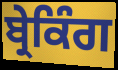
ਬ੍ਰੇਕਿੰਗ